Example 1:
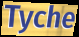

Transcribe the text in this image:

Tyche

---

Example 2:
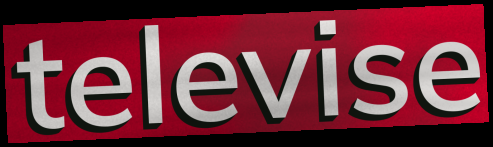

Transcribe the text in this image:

televise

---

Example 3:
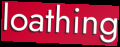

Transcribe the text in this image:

loathing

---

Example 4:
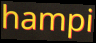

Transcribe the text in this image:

hampi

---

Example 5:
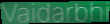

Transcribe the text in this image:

Vaidarbhi